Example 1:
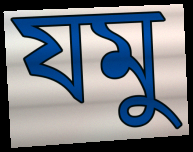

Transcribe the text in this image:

যমু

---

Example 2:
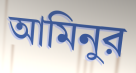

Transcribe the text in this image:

আমিনুর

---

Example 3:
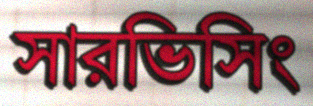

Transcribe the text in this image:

সারভিসিং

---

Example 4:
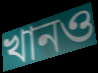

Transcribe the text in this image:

খানও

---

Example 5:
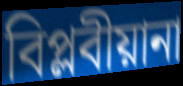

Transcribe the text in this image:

বিপ্লবীয়ানা